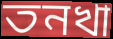
তনখা